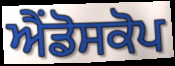
ਐਂਡੋਸਕੋਪ